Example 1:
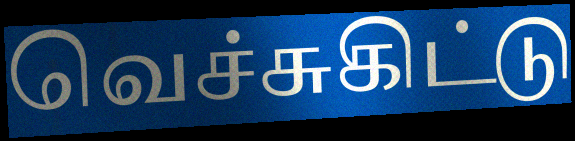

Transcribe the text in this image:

வெச்சுகிட்டு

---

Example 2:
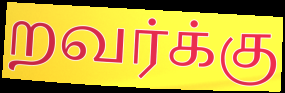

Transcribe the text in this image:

றவர்க்கு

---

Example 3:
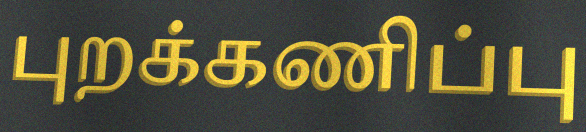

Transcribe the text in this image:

புறக்கணிப்பு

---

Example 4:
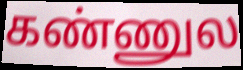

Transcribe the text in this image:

கண்ணுல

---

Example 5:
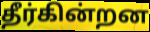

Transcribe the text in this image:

தீர்கின்றன